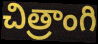
చిత్రాంగి